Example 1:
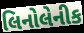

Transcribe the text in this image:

લિનોલેનીક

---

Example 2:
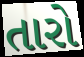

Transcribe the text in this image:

તારો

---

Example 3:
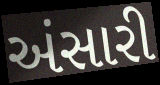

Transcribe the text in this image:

અંસારી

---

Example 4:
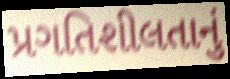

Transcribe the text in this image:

પ્રગતિશીલતાનું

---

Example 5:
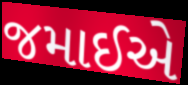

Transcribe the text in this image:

જમાઈએ